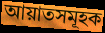
আয়াতসমূহক